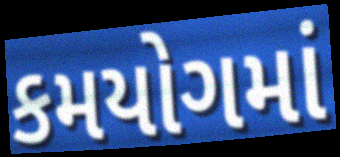
કમયોગમાં